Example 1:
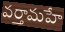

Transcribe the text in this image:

వర్తామహే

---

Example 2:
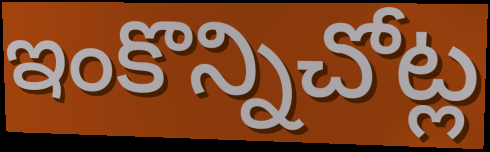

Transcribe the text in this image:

ఇంకొన్నిచోట్ల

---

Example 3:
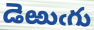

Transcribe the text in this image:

డెఱుఁగు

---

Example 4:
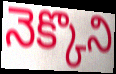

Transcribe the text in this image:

నెక్కొని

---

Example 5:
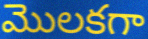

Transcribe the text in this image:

మొలకగా